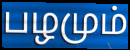
பழமும்